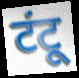
टंटू